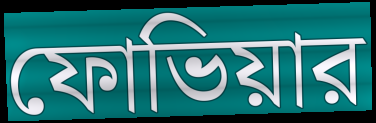
ফোভিয়ার